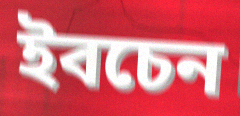
ইবচেন